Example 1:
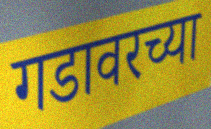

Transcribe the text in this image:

गडावरच्या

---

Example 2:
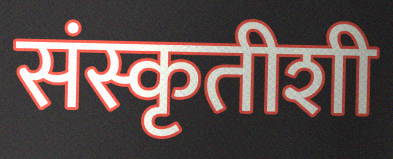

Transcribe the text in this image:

संस्कृतीशी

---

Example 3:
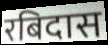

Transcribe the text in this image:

रबिदास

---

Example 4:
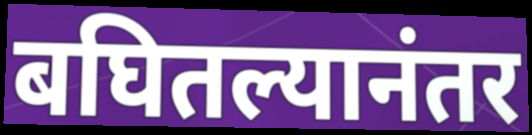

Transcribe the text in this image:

बघितल्यानंतर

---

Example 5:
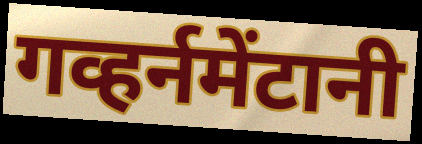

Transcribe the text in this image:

गव्हर्नमेंटानी